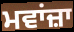
ਮਵਾਂਜ਼ਾ